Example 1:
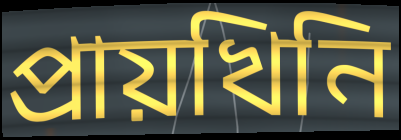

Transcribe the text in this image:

প্ৰায়খিনি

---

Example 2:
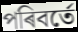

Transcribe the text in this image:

পৰিবৰ্তে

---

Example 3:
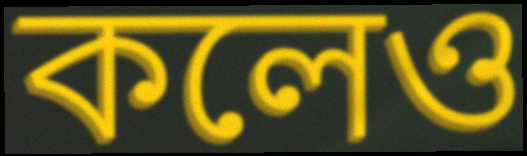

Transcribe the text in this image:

কলেও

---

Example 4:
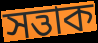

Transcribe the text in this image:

সত্তাক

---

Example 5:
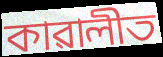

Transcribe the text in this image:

কাৱালীত